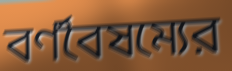
বর্ণবৈষম্যের